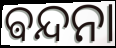
ଵନ୍ଦନା